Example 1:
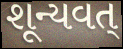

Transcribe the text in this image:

શૂન્યવત્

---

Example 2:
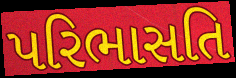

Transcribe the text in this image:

પરિભાસતિ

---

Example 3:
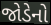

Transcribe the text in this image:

જોડેનો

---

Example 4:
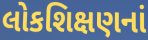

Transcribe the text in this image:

લોકશિક્ષણનાં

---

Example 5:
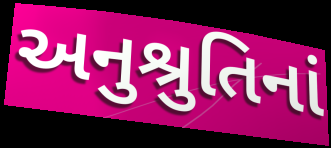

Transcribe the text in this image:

અનુશ્રુતિનાં